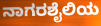
ನಾಗರಶೈಲಿಯ